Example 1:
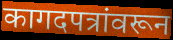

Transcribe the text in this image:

कागदपत्रांवरून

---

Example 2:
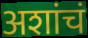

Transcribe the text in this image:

अशांचं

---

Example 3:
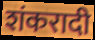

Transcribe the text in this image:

शंकरादी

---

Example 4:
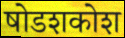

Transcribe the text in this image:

षोडशकोश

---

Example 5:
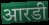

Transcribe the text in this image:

आरडी